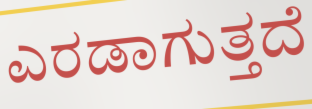
ಎರಡಾಗುತ್ತದೆ